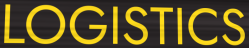
LOGISTICS